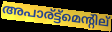
അപാര്ട്ട്മെന്റില്